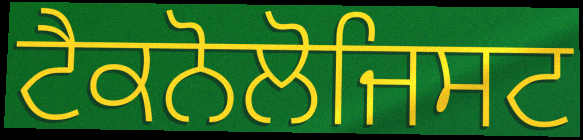
ਟੈਕਨੋਲੋਜਿਸਟ